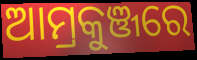
ଆମ୍ରକୁଞ୍ଜରେ